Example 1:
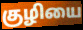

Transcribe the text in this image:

குழியை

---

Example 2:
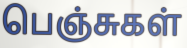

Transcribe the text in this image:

பெஞ்சுகள்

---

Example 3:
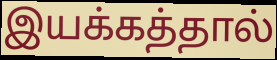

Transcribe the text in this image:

இயக்கத்தால்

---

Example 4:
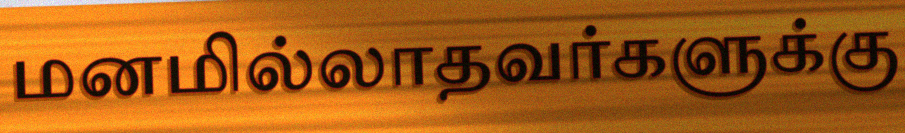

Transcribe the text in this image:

மனமில்லாதவர்களுக்கு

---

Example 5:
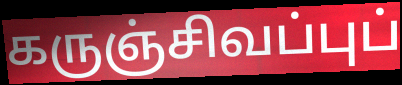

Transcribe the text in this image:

கருஞ்சிவப்புப்